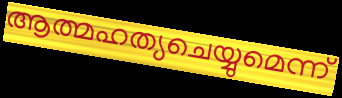
ആത്മഹത്യചെയ്യുമെന്ന്